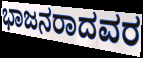
ಭಾಜನರಾದವರ